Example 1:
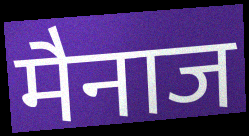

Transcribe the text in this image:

मैनाज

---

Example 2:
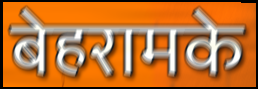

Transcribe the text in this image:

बेहरामके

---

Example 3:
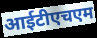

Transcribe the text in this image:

आईटीएचएम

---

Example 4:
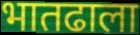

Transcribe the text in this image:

भातढाला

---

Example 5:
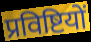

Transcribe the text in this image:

प्रविष्टियों